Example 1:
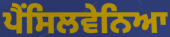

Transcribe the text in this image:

ਪੈਂਸਿਲਵੇਨਿਆ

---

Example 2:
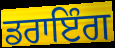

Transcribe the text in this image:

ਡਰਾਇੰਗ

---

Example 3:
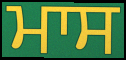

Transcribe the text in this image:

ਮਾਸ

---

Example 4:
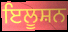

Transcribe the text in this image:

ਇਲੂਸ਼ਨ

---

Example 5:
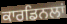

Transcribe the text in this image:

ਕਾਰਡਿਨਲਾਂ